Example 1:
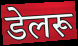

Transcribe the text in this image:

डेलरू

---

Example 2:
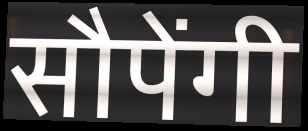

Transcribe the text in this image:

सौपेंगी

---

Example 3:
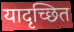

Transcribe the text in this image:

यादृच्छित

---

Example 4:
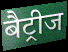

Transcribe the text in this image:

बैट्रीज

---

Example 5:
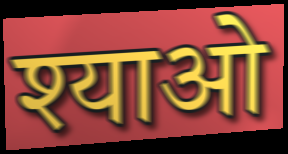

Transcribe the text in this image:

श्याओ